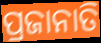
ପ୍ରଜାନାତି